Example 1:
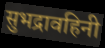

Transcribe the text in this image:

सुभद्रावहिनी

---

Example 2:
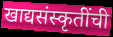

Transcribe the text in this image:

खाद्यसंस्कृतींची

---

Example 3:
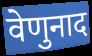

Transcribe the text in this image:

वेणुनाद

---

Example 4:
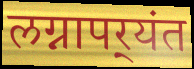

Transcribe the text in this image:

लग्नापर्यंत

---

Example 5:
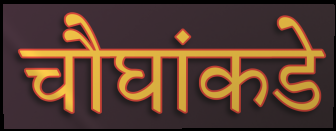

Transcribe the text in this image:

चौघांकडे